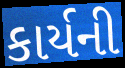
કાર્યની